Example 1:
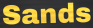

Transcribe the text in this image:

Sands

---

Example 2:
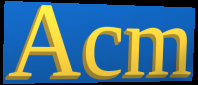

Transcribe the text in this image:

Acm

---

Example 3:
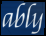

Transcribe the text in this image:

ably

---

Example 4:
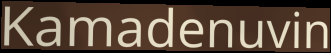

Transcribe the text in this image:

Kamadenuvin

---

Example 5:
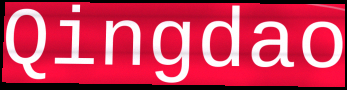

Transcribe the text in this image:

Qingdao